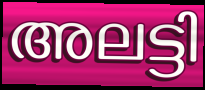
അലട്ടി